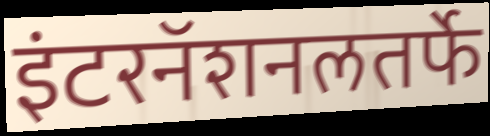
इंटरनॅशनलतर्फे